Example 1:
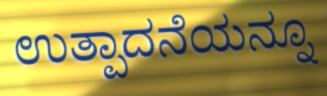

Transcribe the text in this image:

ಉತ್ಪಾದನೆಯನ್ನೂ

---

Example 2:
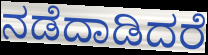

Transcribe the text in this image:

ನಡೆದಾಡಿದರೆ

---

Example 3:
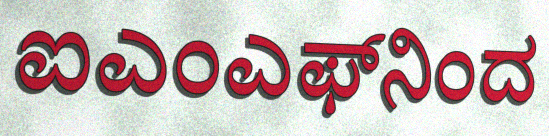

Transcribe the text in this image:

ಐಎಂಎಫ್‌ನಿಂದ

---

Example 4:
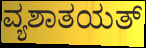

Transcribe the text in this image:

ವ್ಯಶಾತಯತ್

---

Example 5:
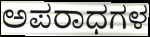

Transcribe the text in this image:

ಅಪರಾಧಗಳ